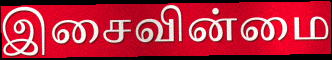
இசைவின்மை